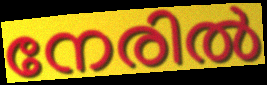
നേരിൽ